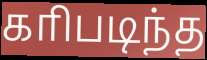
கரிபடிந்த